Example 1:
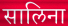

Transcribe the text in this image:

सालिना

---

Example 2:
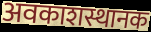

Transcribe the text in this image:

अवकाशस्थानक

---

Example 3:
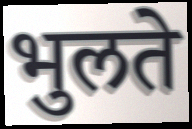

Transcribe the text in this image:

भुलते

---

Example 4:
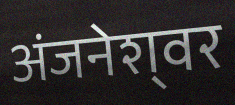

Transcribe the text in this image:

अंजनेश्वर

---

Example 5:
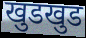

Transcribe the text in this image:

खुडखुड